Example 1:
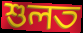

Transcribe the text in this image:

শুলত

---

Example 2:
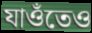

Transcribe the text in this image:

যাওঁতেও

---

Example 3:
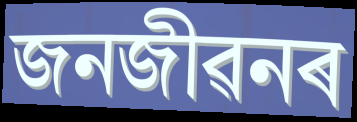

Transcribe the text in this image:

জনজীৱনৰ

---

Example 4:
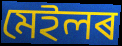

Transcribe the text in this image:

মেইলৰ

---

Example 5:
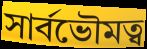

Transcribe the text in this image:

সাৰ্বভৌমত্ব